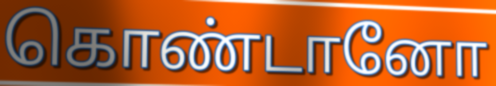
கொண்டானோ